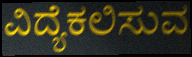
ವಿದ್ಯೆಕಲಿಸುವ